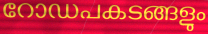
റോഡപകടങ്ങളും